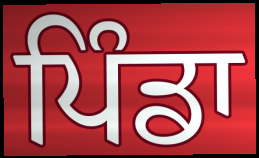
ਪਿੰਡਾ